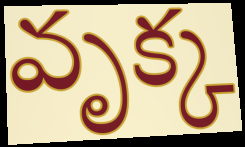
వృక్క